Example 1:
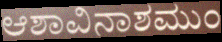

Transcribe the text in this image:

ಆಶಾವಿನಾಶಮುಂ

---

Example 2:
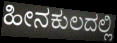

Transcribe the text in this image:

ಹೀನಕುಲದಲ್ಲಿ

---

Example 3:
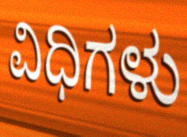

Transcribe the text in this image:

ವಿಧಿಗಳು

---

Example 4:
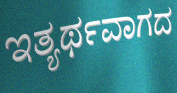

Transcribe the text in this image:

ಇತ್ಯರ್ಥವಾಗದ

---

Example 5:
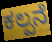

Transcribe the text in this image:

ಕಲ್ಪನೆ